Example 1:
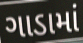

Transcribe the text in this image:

ગાડામાં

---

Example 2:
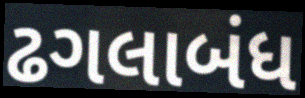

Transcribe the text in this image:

ઢગલાબંધ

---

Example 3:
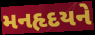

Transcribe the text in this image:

મનહૃદયને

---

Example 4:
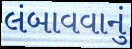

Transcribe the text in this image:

લંબાવવાનું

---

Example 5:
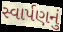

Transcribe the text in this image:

સ્વાર્પણનું